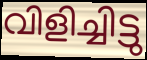
വിളിച്ചിട്ടു